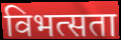
विभत्सता